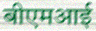
बीएमआई